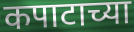
कपाटाच्या